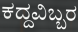
ಕದ್ದವಿಬ್ಬರ